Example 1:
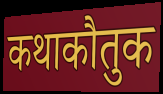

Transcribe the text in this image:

कथाकौतुक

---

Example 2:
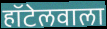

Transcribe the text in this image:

हॉटेलवाला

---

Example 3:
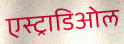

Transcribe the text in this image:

एस्ट्राडिओल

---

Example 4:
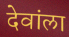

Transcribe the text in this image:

देवांला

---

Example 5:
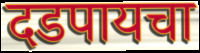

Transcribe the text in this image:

दडपायचा